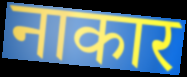
नाकार